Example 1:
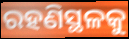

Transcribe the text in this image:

ରହଣିସ୍ଥଳକୁ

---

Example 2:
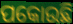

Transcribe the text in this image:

ପକୋଉଛି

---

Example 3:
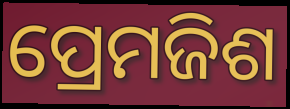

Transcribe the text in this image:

ପ୍ରେମଜିଶ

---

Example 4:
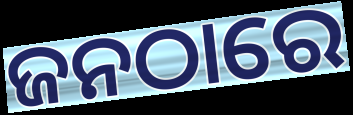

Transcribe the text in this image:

ଜନଠାରେ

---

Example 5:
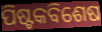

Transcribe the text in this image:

ପିଷ୍ଟକବିଶେଷ